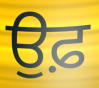
ਉਫ਼